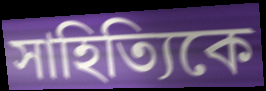
সাহিত্যিকে